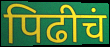
पिढीचं